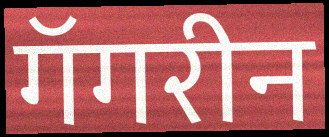
गॅगरीन